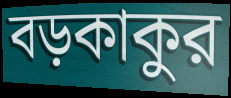
বড়কাকুর